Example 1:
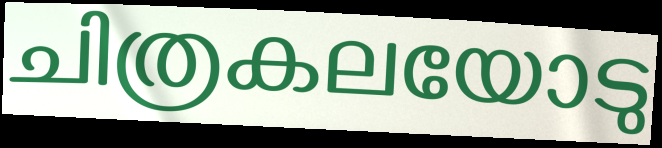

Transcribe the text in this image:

ചിത്രകലയോടു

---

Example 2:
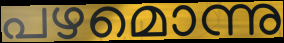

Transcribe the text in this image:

പഴമൊന്നു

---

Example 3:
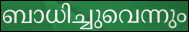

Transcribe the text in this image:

ബാധിച്ചുവെന്നും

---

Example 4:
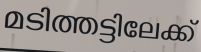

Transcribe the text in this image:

മടിത്തട്ടിലേക്ക്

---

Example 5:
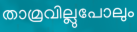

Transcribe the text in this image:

താമ്രവില്ലുപോലും